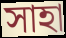
সাহা